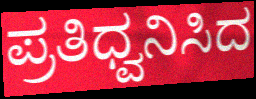
ಪ್ರತಿಧ್ವನಿಸಿದ